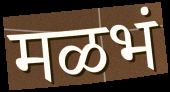
मळभं